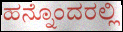
ಹನ್ನೊಂದರಲ್ಲಿ